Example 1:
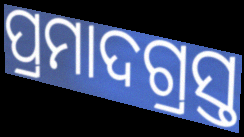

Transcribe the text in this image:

ପ୍ରମାଦଗ୍ରସ୍ତ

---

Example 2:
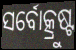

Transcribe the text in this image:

ସର୍ବୋତ୍କ୍ରୁଷ୍ଟ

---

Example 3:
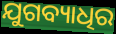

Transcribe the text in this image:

ଯୁଗବ୍ୟାଧିର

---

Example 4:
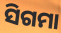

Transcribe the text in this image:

ସିଗମା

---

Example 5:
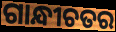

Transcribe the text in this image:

ଗାନ୍ଧୀଚତର